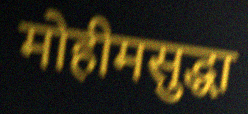
मोहीमसुद्धा